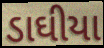
ડાઘીયા